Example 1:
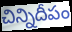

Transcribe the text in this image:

చిన్నిదీపం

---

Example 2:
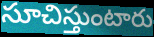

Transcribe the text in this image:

సూచిస్తుంటారు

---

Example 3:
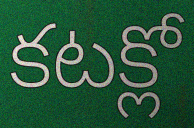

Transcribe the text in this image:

కటక్లో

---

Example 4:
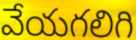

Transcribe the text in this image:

వేయగలిగి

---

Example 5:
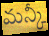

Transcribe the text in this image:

మన్కీ